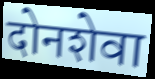
दोनशेवा